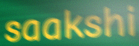
saakshi